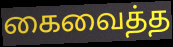
கைவைத்த